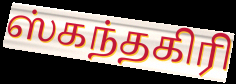
ஸ்கந்தகிரி